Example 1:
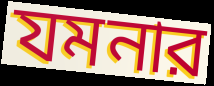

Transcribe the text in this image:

যমনার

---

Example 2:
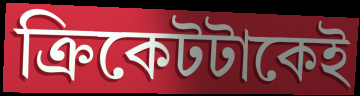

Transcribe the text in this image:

ক্রিকেটটাকেই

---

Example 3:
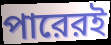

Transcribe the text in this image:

পারেরই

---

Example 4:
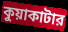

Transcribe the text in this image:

কুয়াকাটার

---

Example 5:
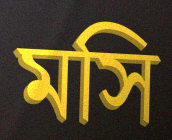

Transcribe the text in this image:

মসি